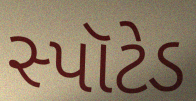
સ્પૉટેડ